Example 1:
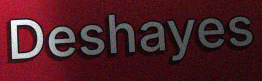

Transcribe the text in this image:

Deshayes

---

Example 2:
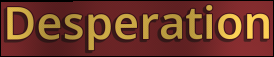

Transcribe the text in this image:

Desperation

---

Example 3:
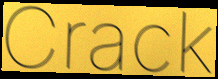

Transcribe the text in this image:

Crack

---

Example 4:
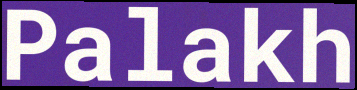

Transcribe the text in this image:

Palakh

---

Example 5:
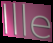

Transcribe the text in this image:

Ille